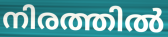
നിരത്തിൽ